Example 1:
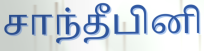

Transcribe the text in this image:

சாந்தீபினி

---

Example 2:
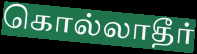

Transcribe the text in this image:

கொல்லாதீர்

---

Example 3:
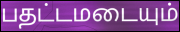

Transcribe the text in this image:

பதட்டமடையும்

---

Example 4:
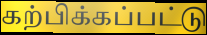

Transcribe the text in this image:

கற்பிக்கப்பட்டு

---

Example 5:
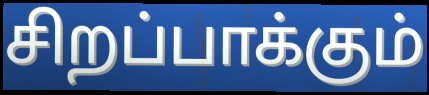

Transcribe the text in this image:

சிறப்பாக்கும்